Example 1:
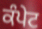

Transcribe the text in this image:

ਕੰਪੇਟ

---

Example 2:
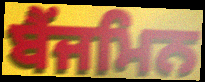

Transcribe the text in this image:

ਬੈਂਜਮਿਨ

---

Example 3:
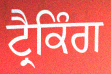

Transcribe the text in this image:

ਟ੍ਰੈਕਿੰਗ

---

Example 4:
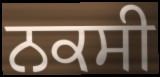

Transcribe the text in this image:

ਨਕਸੀ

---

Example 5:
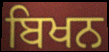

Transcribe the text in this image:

ਬਿਖਨ